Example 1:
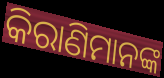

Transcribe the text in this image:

କିରାଣିମାନଙ୍କ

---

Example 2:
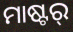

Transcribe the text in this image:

ମାଷ୍ଟର୍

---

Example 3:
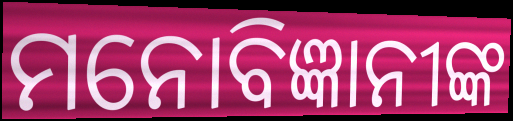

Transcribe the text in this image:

ମନୋବିଜ୍ଞାନୀଙ୍କ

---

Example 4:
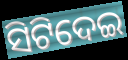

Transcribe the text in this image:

ସିଟିଦେଇ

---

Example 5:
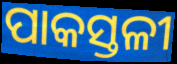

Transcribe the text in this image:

ପାକସ୍ତଳୀ